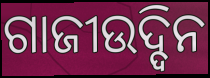
ଗାଜୀଉଦ୍ଦିନ